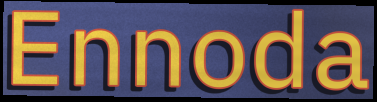
Ennoda